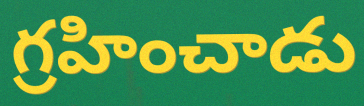
గ్రహించాడు